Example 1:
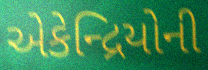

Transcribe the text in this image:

એકેન્દ્રિયોની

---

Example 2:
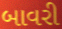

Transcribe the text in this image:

બાવરી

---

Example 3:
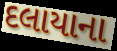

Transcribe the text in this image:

દલાયાના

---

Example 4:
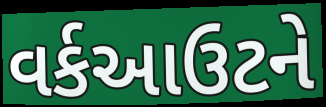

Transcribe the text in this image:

વર્કઆઉટને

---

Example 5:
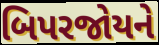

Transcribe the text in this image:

બિપરજોયને